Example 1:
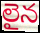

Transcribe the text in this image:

లైన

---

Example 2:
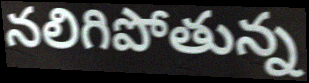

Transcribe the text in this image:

నలిగిపోతున్న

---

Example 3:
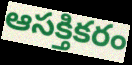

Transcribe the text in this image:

ఆసక్తికరం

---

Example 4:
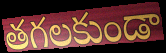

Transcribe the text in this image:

తగలకుండా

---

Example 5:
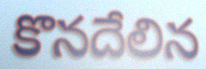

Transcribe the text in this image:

కొనదేలిన